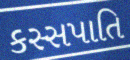
કસ્સપાતિ